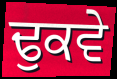
ਢੁਕਵੇ